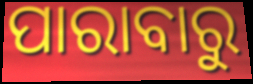
ପାରାବାରୁ